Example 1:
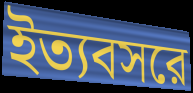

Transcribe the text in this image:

ইত্যবসরে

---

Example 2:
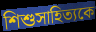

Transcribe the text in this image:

শিশুসাহিত্যকে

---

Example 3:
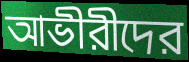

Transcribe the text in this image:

আভীরীদের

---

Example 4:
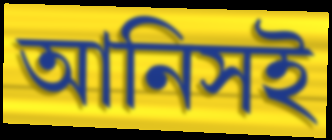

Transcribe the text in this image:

আনিসই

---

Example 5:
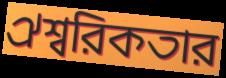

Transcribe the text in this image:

ঐশ্বরিকতার